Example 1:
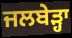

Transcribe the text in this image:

ਜਲਬੇੜ੍ਹਾ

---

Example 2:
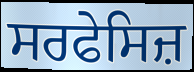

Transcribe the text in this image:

ਸਰਫੇਸਿਜ਼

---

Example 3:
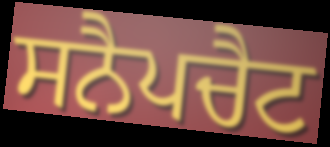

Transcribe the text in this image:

ਸਨੈਪਚੈਟ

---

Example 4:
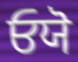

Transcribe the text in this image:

ਓਯੋ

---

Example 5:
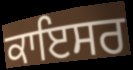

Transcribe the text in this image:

ਕਾਇਸਰ